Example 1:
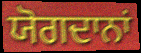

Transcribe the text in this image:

ਯੋਗਦਾਨਾਂ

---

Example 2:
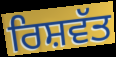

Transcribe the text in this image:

ਰਿਸ਼ਵੱਤ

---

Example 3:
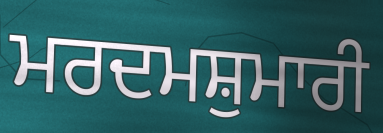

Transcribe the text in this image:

ਮਰਦਮਸ਼ੁਮਾਰੀ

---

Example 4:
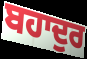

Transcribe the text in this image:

ਬਹਾਦੁਰ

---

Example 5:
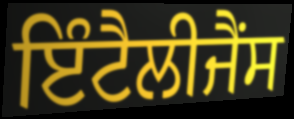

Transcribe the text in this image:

ਇੰਟੈਲੀਜੈਂਸ